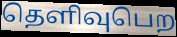
தெளிவுபெற